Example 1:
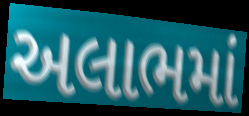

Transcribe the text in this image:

અલાભમાં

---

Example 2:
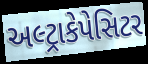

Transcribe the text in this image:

અલ્ટ્રાકેપેસિટર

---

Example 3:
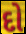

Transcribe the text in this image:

દો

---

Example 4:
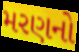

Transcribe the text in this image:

મરણનો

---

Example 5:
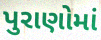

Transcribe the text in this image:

પુરાણોમાં